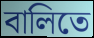
বালিতে